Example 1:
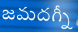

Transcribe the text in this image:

జమదగ్నీ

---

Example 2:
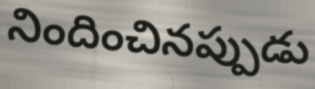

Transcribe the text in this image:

నిందించినప్పుడు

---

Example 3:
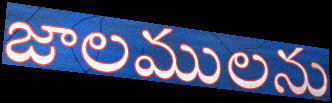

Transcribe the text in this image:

జాలములను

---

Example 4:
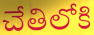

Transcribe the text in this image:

చేతిలోకి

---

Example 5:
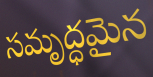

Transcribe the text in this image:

సమృద్ధమైన